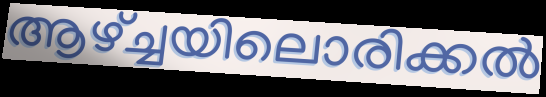
ആഴ്ച്ചയിലൊരിക്കൽ